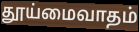
தூய்மைவாதம்